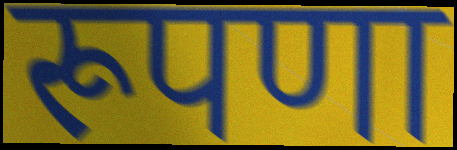
रूपणा